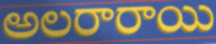
అలరారాయి